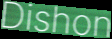
Dishon